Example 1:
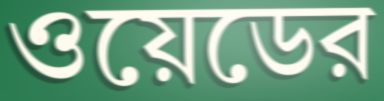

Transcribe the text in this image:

ওয়েডের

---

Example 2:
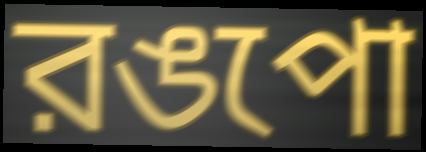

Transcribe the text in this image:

রঙপো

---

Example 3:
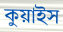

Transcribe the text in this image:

কুয়াইস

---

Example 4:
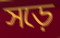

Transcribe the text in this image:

সড়ে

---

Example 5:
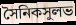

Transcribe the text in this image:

সৈনিকসুলভ